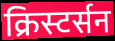
क्रिस्टर्सन